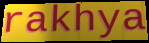
rakhya